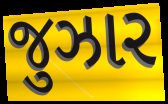
જુઝાર